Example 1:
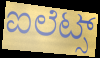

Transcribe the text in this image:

ಐಲೆಟ್ಸ್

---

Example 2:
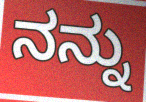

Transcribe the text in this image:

ನನ್ನು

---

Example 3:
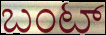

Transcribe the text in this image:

ಬಂಟ್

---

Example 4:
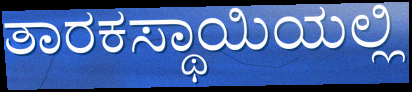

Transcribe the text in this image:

ತಾರಕಸ್ಥಾಯಿಯಲ್ಲಿ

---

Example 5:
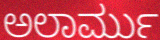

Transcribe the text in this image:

ಅಲಾರ್ಮು